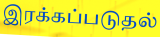
இரக்கப்படுதல்